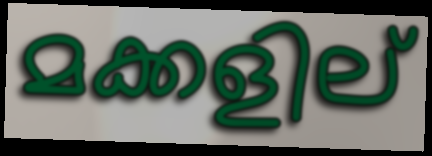
മക്കളില്